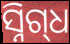
ସ୍ନିଗ୍‍ଧ